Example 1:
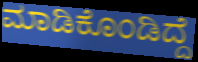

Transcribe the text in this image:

ಮಾಡಿಕೊಂಡಿದ್ದೆ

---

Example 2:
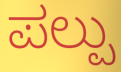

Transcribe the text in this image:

ಪಲ್ಪು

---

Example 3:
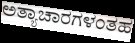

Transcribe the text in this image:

ಅತ್ಯಾಚಾರಗಳಂತಹ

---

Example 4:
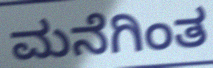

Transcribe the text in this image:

ಮನೆಗಿಂತ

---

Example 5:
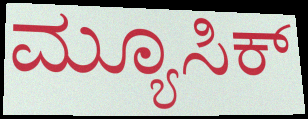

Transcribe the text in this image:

ಮ್ಯೂಸಿಕ್